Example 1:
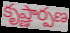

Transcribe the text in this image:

కృష్ణార్పణ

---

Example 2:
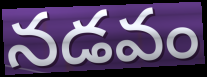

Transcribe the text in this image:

నడవం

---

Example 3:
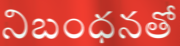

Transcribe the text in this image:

నిబంధనతో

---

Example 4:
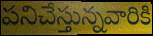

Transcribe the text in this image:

పనిచేస్తున్నవారికి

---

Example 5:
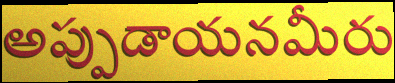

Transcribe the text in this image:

అప్పుడాయనమీరు